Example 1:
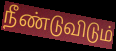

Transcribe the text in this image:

நீண்டுவிடும்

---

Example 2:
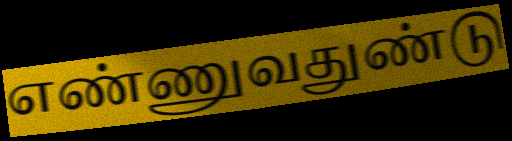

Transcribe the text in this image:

எண்ணுவதுண்டு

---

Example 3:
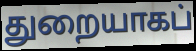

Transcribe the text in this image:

துறையாகப்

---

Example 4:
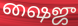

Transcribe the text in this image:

ஷைஜு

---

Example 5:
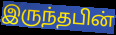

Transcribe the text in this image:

இருந்தபின்